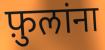
फ़ुलांना